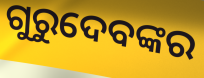
ଗୁରୁଦେବଙ୍କର